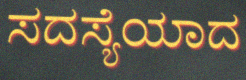
ಸದಸ್ಯೆಯಾದ